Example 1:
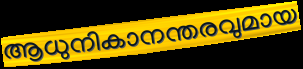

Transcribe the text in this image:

ആധുനികാനന്തരവുമായ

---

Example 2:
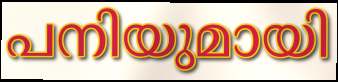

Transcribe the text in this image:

പനിയുമായി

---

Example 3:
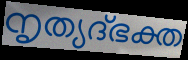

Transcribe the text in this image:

നൃത്യദ്ഭക്ത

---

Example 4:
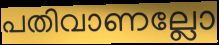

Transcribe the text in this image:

പതിവാണല്ലോ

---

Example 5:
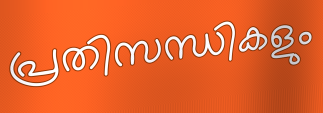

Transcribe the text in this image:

പ്രതിസന്ധികളും